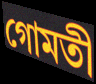
গোমতী